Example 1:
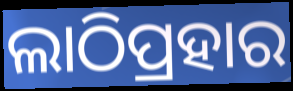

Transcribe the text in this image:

ଲାଠିପ୍ରହାର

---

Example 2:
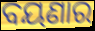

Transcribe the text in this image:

ବୟଣାର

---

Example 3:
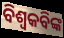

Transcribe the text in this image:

ବିଶ୍ୱକବିଙ୍କ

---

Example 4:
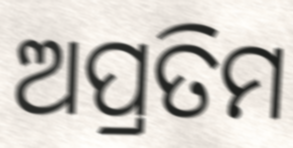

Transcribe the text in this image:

ଅପ୍ରତିମ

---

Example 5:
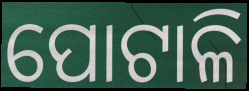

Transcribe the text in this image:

ପୋଟାଳି